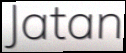
Jatan